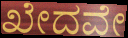
ಖೇದವೇ